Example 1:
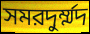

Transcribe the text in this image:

সমরদুর্ম্মদ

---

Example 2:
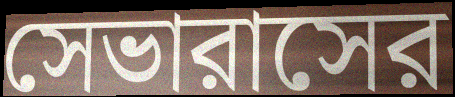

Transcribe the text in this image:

সেভারাসের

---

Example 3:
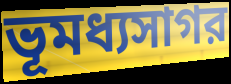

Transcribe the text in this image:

ভূমধ্যসাগর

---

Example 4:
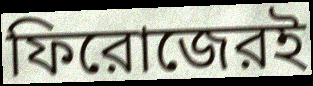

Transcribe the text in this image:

ফিরোজেরই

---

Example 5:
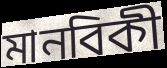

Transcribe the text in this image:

মানবিকী